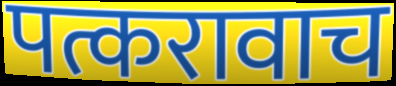
पत्करावाच